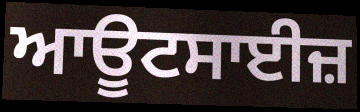
ਆਊਟਸਾਈਜ਼